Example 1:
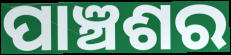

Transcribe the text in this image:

ପାଞ୍ଚଶର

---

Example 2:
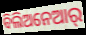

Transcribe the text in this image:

ବିଲିଅନେଆର୍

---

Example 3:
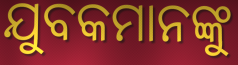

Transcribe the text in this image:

ଯୁବକମାନଙ୍କୁ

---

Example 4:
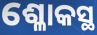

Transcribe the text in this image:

ଶ୍ଳୋକସ୍ଥ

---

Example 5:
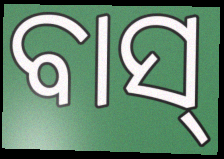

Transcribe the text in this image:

ବାସ୍